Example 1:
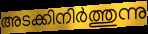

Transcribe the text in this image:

അടക്കിനിർത്തുന്നു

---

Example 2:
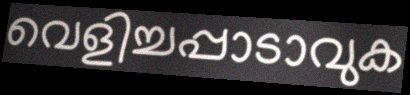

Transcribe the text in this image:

വെളിച്ചപ്പാടാവുക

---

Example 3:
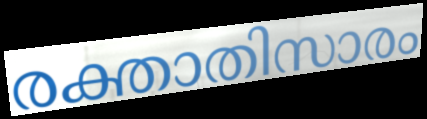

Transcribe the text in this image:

രക്താതിസാരം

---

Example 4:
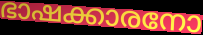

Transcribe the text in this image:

ഭാഷക്കാരനോ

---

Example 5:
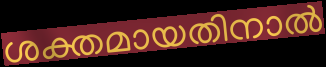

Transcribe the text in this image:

ശക്തമായതിനാൽ